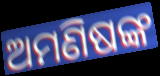
ଅମଣିଷଙ୍କ